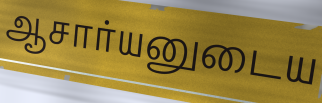
ஆசார்யனுடைய